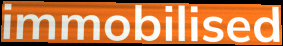
immobilised